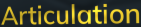
Articulation